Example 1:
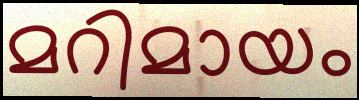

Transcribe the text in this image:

മറിമായം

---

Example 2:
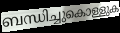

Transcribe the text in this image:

ബന്ധിച്ചുകൊള്ളുക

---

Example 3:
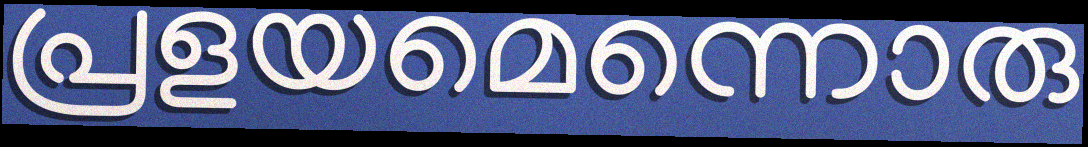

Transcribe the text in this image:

പ്രളയമെന്നൊരു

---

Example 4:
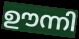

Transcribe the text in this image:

ഊന്നി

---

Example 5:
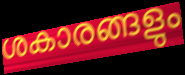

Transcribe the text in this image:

ശകാരങ്ങളും